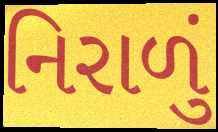
નિરાળું